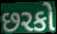
છરકો